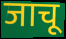
जाचू